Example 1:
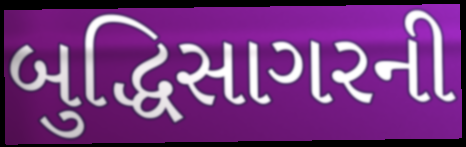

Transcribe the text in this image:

બુદ્ધિસાગરની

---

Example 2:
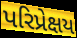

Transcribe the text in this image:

પરિપ્રેક્ષય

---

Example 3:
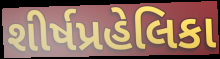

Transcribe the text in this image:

શીર્ષપ્રહેલિકા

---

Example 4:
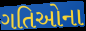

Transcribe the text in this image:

ગતિઓના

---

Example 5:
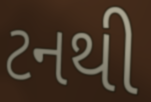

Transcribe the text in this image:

ટનથી